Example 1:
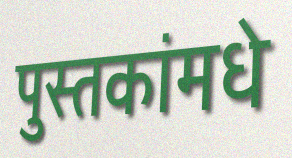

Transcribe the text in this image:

पुस्तकांमधे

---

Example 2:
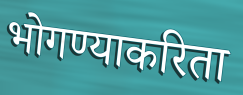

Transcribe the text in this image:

भोगण्याकरिता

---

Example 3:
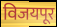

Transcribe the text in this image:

विजयपूर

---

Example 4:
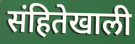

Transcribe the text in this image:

संहितेखाली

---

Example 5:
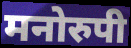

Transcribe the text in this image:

मनोरुपी